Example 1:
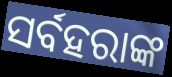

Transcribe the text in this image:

ସର୍ବହରାଙ୍କ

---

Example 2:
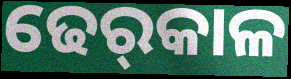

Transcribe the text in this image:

ଢେର୍‌କାଳ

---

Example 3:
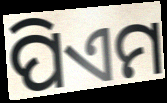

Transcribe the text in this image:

ପିଏମ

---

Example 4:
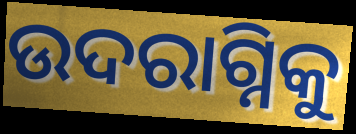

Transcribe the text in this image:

ଉଦରାଗ୍ନିକୁ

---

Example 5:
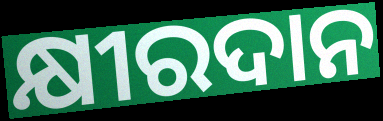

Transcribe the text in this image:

କ୍ଷୀରଦାନ